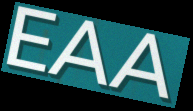
EAA